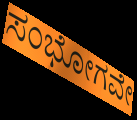
ಸಂಭೋಗವೇ